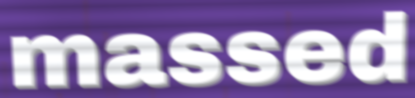
massed